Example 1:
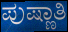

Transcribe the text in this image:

ಪುಷ್ಣಾತಿ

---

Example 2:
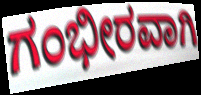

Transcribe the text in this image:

ಗಂಭೀರವಾಗಿ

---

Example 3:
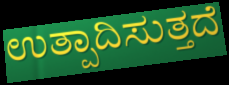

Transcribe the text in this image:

ಉತ್ಪಾದಿಸುತ್ತದೆ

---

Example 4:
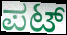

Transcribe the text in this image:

ಪಟ್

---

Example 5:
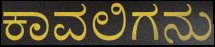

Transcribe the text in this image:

ಕಾವಲಿಗನು